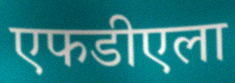
एफडीएला